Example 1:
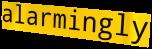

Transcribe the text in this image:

alarmingly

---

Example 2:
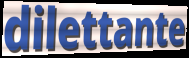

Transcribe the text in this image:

dilettante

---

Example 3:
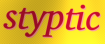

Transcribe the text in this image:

styptic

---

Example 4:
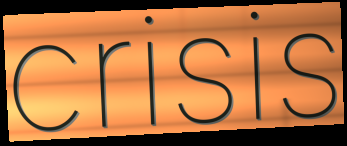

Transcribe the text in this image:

crisis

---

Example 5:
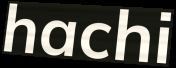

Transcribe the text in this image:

hachi